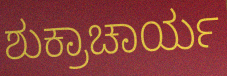
ಶುಕ್ರಾಚಾರ್ಯ